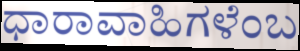
ಧಾರಾವಾಹಿಗಳೆಂಬ